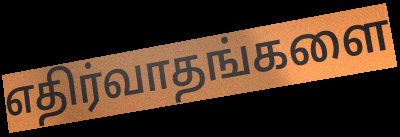
எதிர்வாதங்களை